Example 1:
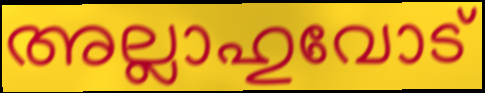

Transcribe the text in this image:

അല്ലാഹുവോട്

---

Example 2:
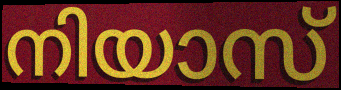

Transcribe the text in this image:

നിയാസ്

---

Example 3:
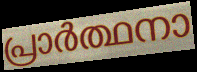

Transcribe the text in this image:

പ്രാർത്ഥനാ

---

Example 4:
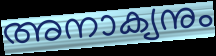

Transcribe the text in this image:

അനാക്യനും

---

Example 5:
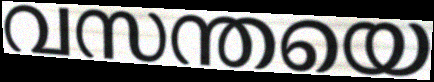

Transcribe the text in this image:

വസന്തയെ